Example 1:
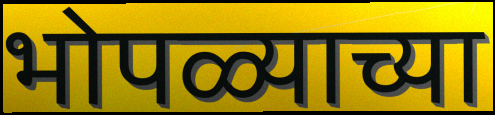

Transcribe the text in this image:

भोपळ्याच्या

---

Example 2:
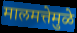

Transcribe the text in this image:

मालमत्तेमुळे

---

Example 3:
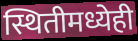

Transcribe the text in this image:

स्थितीमध्येही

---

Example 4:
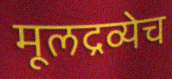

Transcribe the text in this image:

मूलद्रव्येच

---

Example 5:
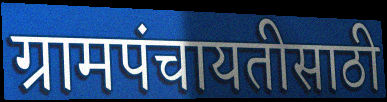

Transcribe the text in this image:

ग्रामपंचायतीसाठी